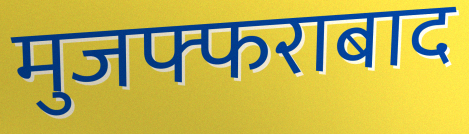
मुजफ्फराबाद